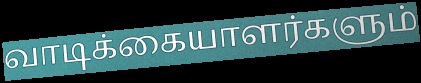
வாடிக்கையாளர்களும்